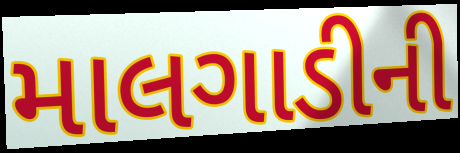
માલગાડીની